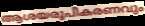
ആശയരൂപീകരണവും